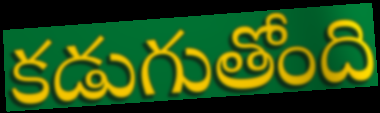
కడుగుతోంది